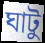
ঘাটু